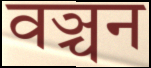
वञ्चन